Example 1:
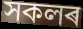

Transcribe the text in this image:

সকলৰ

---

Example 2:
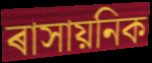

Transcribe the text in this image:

ৰাসায়নিক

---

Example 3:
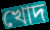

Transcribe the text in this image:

খোদ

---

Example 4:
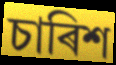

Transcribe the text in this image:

চাৰিশ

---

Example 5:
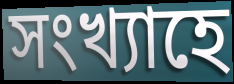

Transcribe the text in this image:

সংখ্যাহে